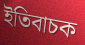
ইতিবাচক